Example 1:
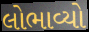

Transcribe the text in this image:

લોભાવ્યો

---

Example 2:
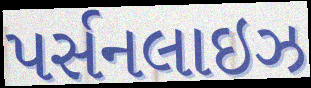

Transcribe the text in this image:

પર્સનલાઇઝ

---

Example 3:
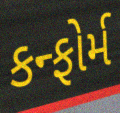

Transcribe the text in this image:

કન્ફોર્મ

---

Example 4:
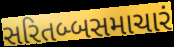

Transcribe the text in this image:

સરિતબ્બસમાચારં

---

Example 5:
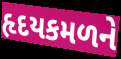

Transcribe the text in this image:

હૃદયકમળને